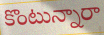
కొంటున్నారా